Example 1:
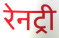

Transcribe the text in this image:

रेनट्री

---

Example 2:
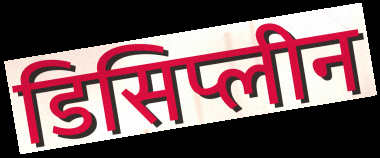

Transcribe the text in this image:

डिसिप्लीन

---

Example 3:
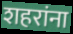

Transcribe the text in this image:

शहरांना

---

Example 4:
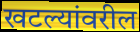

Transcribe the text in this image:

खटल्यांवरील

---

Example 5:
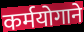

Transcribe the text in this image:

कर्मयोगाने